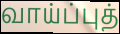
வாய்ப்புத்